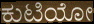
ಕುಟಿಯೋ